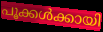
പൂക്കൾക്കായി